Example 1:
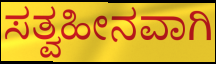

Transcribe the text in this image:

ಸತ್ವಹೀನವಾಗಿ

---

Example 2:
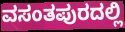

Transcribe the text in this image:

ವಸಂತಪುರದಲ್ಲಿ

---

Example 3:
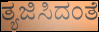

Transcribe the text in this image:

ತ್ಯಜಿಸಿದಂತೆ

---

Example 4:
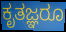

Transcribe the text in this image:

ಕೃತಜ್ಞರೂ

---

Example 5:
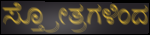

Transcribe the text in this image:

ಸ್ತ್ರೋತ್ರಗಳಿಂದ